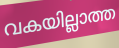
വകയില്ലാത്ത